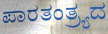
ಪಾರತಂತ್ರ್ಯದ